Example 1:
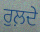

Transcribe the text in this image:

ਰੁਲ਼ਦੇ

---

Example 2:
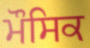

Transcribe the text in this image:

ਮੌਸਿਕ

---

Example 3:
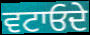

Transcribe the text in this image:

ਵਟਾਓਦੇ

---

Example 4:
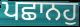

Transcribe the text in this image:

ਪਛਾਨਹੁ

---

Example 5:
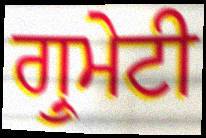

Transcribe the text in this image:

ਗ੍ਰੁਮੇਟੀ